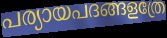
പര്യായപദങ്ങളത്രേ